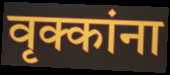
वृक्कांना